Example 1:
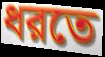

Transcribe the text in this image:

ধরতে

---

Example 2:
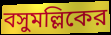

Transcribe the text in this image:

বসুমল্লিকের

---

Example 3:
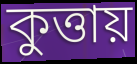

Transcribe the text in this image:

কুত্তায়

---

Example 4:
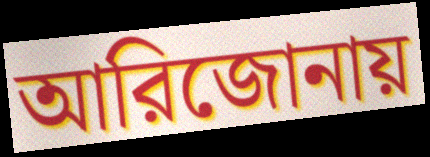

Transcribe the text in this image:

আরিজোনায়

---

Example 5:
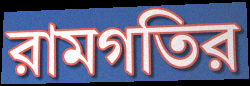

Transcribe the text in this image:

রামগতির